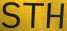
STH